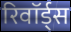
रिवॉर्ड्स